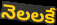
నెలలకే